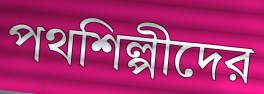
পথশিল্পীদের